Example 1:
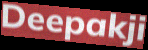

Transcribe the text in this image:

Deepakji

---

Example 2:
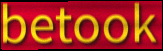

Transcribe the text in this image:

betook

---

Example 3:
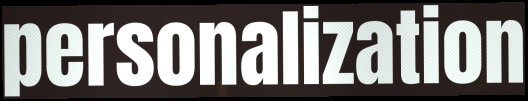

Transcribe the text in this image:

personalization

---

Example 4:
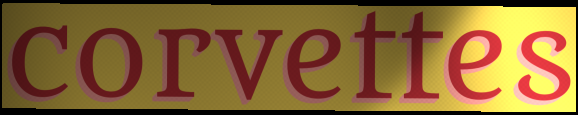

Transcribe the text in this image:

corvettes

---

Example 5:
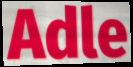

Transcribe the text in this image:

Adle